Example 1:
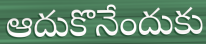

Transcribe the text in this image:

ఆదుకొనేందుకు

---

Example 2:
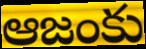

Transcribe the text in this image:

ఆజంకు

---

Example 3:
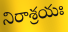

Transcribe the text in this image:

నిరాశ్రయః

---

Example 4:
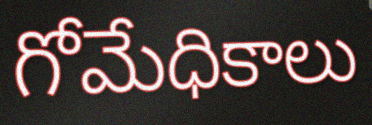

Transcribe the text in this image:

గోమేధికాలు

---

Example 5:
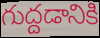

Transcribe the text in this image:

గుద్దడానికి